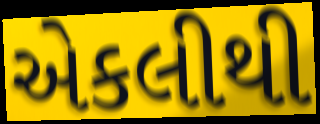
એકલીથી